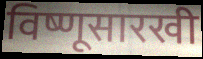
विष्णूसारखी